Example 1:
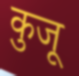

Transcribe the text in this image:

कुजू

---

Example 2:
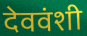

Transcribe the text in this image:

देववंशी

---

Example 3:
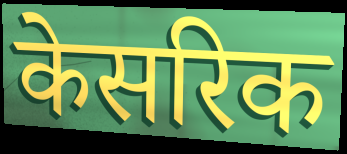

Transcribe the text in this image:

केसरिक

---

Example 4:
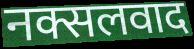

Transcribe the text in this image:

नक्सलवाद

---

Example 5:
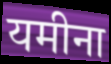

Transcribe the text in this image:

यमीना